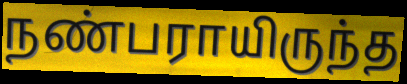
நண்பராயிருந்த